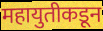
महायुतीकडून